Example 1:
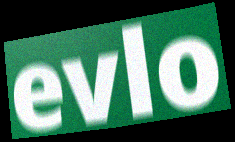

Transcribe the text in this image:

evlo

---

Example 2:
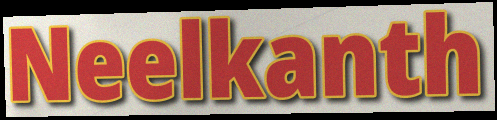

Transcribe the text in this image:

Neelkanth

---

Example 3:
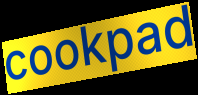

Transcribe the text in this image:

cookpad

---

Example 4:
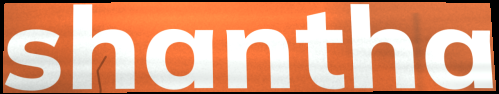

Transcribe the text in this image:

shantha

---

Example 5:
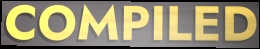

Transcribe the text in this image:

COMPILED